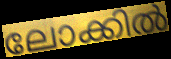
ലോക്കിൽ